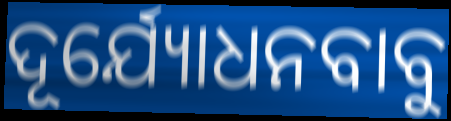
ଦୂର୍ଯ୍ୟୋଧନବାବୁ